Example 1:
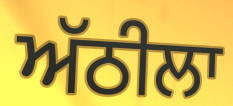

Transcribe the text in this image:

ਅੱਠੀਲਾ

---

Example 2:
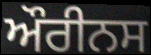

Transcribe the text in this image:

ਔਰੀਨਸ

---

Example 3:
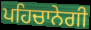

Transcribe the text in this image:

ਪਹਿਚਾਨੇਗੀ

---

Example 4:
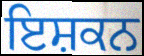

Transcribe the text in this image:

ਇਸ਼ਕਨ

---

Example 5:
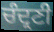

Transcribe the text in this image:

ਚੰਦ੍ਰਣੀ